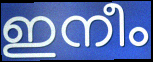
ഇനീം